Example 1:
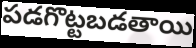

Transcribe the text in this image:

పడగొట్టబడతాయి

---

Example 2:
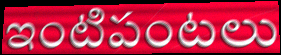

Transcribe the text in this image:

ఇంటిపంటలు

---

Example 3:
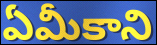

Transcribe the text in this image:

ఏమీకాని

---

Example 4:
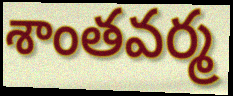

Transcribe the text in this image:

శాంతవర్మ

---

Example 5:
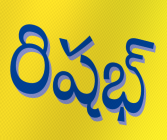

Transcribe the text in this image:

రిషభ్